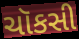
ચૉકસી